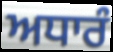
ਅਧਾਰੰ